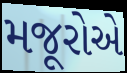
મજૂરોએ